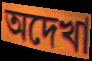
অদেখা